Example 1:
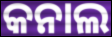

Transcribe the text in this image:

କନାଲ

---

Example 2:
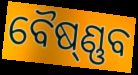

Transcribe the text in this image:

ବୈଷ୍ଣ୍ଣବ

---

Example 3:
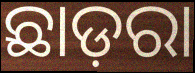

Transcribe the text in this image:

ଛାଡ଼ରା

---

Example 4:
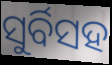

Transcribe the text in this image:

ସୁର୍ବିସହ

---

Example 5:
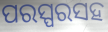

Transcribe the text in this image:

ପରସ୍ପରସହ